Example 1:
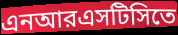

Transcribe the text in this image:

এনআরএসটিসিতে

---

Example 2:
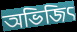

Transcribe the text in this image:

অভিজিৎ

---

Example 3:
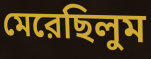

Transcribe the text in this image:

মেরেছিলুম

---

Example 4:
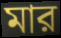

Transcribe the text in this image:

মার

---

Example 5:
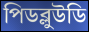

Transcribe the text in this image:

পিডব্লুউডি